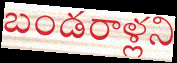
బండరాళ్లని